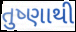
તુષ્ણાથી